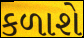
કળાશે